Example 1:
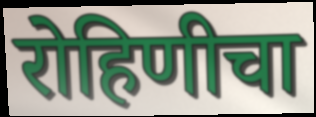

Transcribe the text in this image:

रोहिणीचा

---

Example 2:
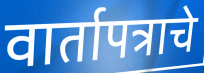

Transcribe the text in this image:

वार्तापत्राचे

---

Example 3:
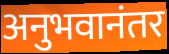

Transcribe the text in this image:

अनुभवानंतर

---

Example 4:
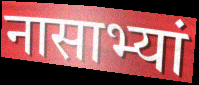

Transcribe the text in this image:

नासाभ्यां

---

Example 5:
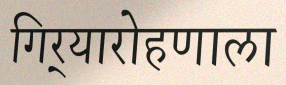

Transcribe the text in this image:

गिर्यारोहणाला